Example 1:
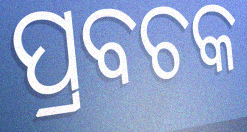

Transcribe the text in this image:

ପ୍ରବଚକ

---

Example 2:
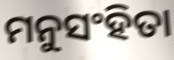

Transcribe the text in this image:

ମନୁସଂହିତା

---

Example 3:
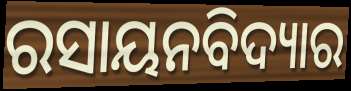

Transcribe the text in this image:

ରସାୟନବିଦ୍ୟାର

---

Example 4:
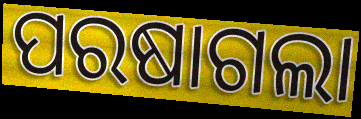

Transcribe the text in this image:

ପରଷାଗଲା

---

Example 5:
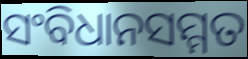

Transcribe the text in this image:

ସଂବିଧାନସମ୍ମତ